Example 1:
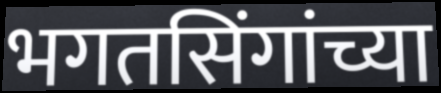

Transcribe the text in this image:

भगतसिंगांच्या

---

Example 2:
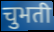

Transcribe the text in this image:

चुभती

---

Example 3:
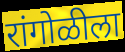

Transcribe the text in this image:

रांगोळीला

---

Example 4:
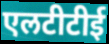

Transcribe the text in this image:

एलटीटीई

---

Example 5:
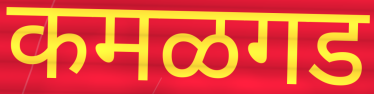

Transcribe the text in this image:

कमळगड